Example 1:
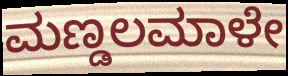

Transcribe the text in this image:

ಮಣ್ಡಲಮಾಳೇ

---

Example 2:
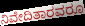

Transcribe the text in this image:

ನಿವೇದಿತಾರವರೂ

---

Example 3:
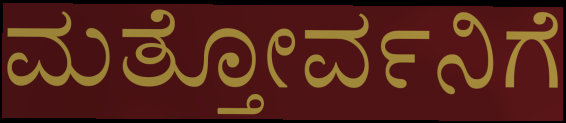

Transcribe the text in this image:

ಮತ್ತೋರ್ವನಿಗೆ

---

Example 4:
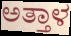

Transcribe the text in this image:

ಅತ್ತಾಳ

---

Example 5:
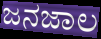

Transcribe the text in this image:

ಜನಜಾಲ